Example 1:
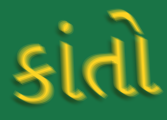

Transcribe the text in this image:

કાંતો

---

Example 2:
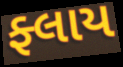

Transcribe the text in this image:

ફ્લાય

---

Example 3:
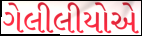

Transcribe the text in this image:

ગેલીલીયોએ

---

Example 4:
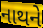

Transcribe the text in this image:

નાથને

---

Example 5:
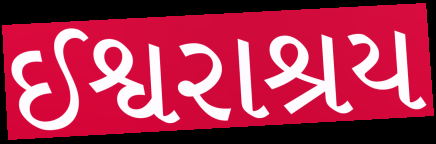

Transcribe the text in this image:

ઈશ્વરાશ્રય